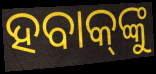
ହବାକ୍‌ଙ୍କୁ